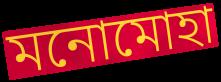
মনোমোহা